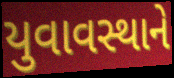
યુવાવસ્થાને